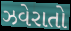
ઝવેરાતો